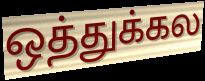
ஒத்துக்கல